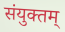
संयुक्तम्